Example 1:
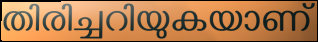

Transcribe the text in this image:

തിരിച്ചറിയുകയാണ്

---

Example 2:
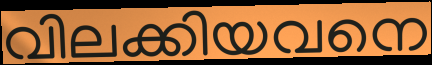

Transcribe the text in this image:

വിലക്കിയവനെ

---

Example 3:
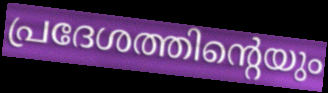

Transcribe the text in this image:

പ്രദേശത്തിന്റെയും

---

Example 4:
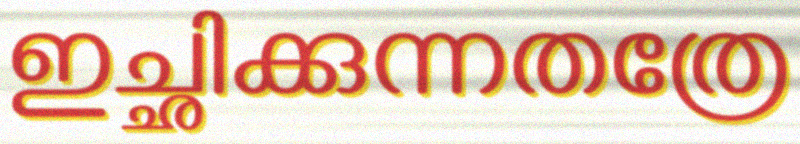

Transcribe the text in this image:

ഇച്ഛിക്കുന്നതത്രേ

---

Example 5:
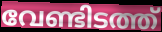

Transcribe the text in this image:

വേണ്ടിടത്ത്